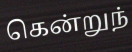
கென்றுந்